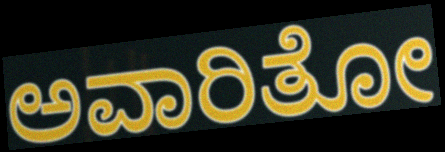
ಅವಾರಿತೋ